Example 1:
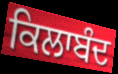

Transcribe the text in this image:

ਕਿਲਾਬੰਦ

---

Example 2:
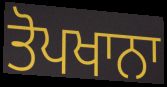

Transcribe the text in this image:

ਤੋਪਖਾਨਾ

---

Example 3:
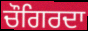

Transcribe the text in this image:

ਚੌਗਿਰਦਾ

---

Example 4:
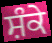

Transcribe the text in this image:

ਸ਼ੰਕੇ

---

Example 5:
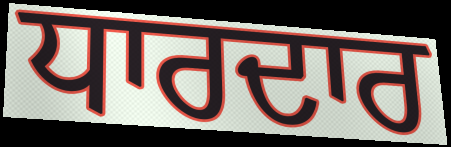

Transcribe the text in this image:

ਧਾਰਦਾਰ